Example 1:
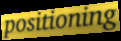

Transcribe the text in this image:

positioning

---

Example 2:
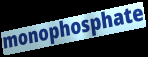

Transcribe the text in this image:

monophosphate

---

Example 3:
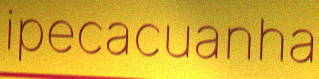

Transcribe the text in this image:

ipecacuanha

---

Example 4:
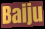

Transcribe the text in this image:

Baiju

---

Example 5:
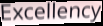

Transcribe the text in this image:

Excellency